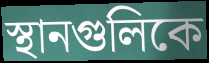
স্থানগুলিকে